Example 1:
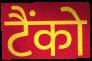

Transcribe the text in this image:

टैंको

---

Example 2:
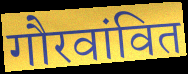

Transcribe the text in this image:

गौरवांवित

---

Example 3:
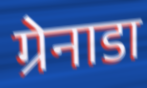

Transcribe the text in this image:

ग्रेनाडा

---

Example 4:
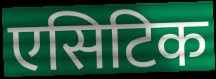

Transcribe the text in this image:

एसिटिक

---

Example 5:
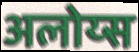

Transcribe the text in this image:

अलोय्स